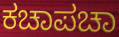
ಕಚಾಪಚಾ